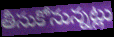
తీసుకోనున్నట్లు